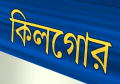
কিলগোর